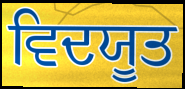
ਵਿਦਯੂਤ